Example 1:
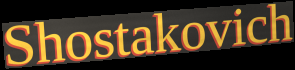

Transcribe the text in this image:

Shostakovich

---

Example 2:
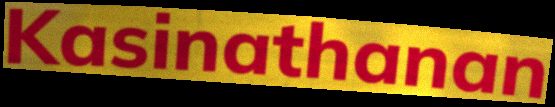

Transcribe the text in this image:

Kasinathanan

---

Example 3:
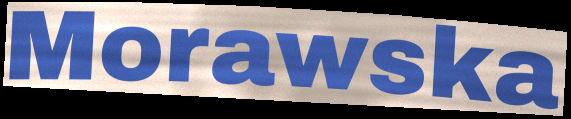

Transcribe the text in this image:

Morawska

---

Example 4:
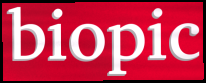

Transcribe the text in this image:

biopic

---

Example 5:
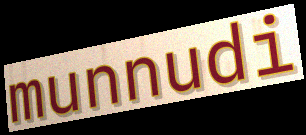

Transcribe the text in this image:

munnudi